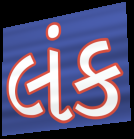
લંક